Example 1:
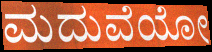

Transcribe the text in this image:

ಮದುವೆಯೋ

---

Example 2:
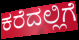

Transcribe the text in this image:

ಕರೆದಲ್ಲಿಗೆ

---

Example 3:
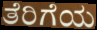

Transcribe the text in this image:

ತೆರಿಗೆಯ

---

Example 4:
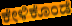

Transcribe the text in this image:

ಕೇಳಿಕೊಂಡೆ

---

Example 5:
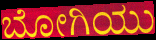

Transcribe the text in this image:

ಬೋಗಿಯು